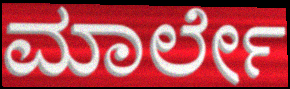
ಮಾರ್ಲೇ